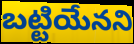
బట్టియేనని